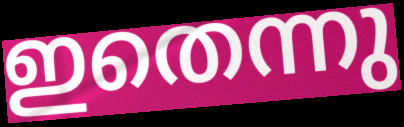
ഇതെന്നു